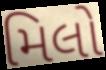
મિલો